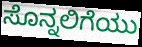
ಸೊನ್ನಲಿಗೆಯು